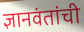
ज्ञानवंतांची